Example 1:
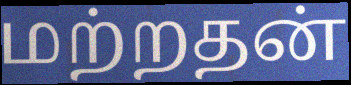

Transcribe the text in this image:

மற்றதன்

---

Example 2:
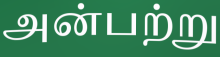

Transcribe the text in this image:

அன்பற்று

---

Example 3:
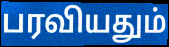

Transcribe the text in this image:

பரவியதும்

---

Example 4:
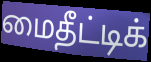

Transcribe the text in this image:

மைதீட்டிக்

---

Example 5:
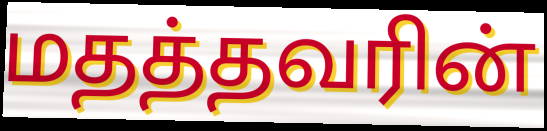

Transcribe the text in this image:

மதத்தவரின்